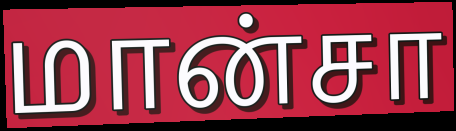
மான்சா